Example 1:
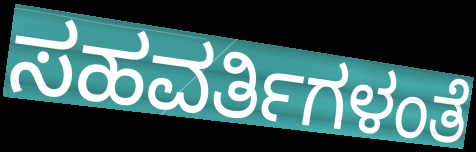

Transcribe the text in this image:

ಸಹವರ್ತಿಗಳಂತೆ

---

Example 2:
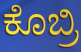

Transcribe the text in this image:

ಕೊಬ್ರಿ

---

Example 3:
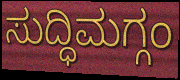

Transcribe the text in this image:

ಸುದ್ಧಿಮಗ್ಗಂ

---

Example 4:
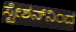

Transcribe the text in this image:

ಸ್ಟೇಶನ್‌ನಿಂದ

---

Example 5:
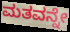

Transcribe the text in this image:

ಮತವನ್ನೇ